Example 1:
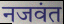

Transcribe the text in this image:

नजवंत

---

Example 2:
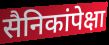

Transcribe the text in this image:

सैनिकांपेक्षा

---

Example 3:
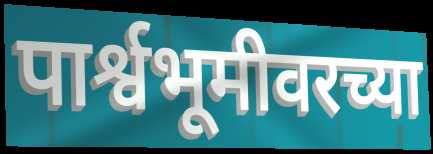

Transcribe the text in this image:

पार्श्वभूमीवरच्या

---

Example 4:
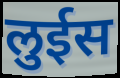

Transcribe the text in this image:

लुईस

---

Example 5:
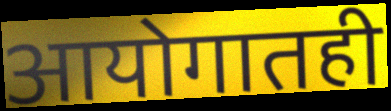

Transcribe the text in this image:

आयोगातही